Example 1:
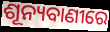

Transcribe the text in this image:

ଶୂନ୍ୟବାଣୀରେ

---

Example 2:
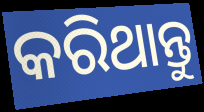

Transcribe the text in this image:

କରିଥାନ୍ତୁ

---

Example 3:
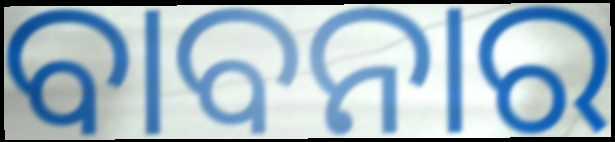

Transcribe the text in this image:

ବାବନାର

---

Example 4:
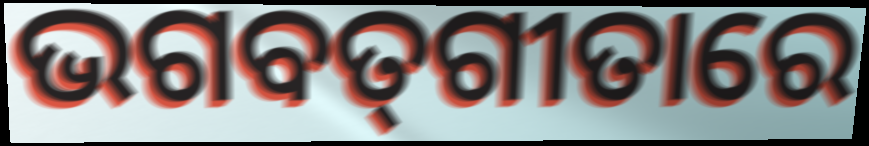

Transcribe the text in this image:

ଭଗବତ୍‌ଗୀତାରେ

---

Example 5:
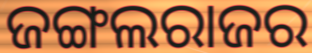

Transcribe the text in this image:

ଜଙ୍ଗଲରାଜର